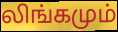
லிங்கமும்